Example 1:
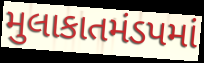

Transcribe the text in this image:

મુલાકાતમંડપમાં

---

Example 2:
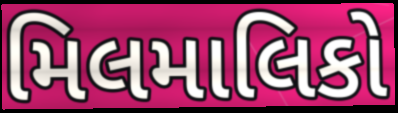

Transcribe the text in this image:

મિલમાલિકો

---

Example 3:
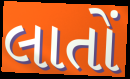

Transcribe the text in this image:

લાતોં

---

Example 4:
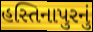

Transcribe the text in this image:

હસ્તિનાપુરનું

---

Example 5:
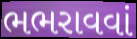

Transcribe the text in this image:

ભભરાવવાં